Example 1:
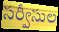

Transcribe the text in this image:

సర్వీసుల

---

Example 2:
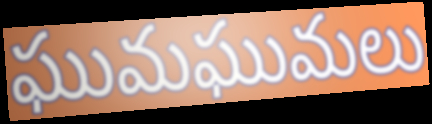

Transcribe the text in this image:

ఘుమఘుమలు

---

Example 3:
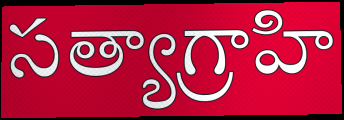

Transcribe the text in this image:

సత్యాగ్రాహి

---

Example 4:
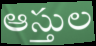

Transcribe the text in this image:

ఆస్తుల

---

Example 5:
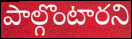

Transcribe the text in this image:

పాల్గొంటారని